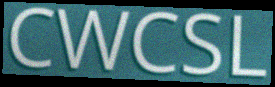
CWCSL